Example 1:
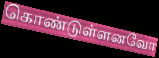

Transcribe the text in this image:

கொண்டுள்ளனவோ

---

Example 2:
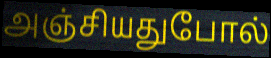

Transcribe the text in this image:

அஞ்சியதுபோல்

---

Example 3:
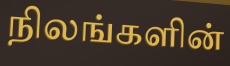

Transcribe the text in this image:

நிலங்களின்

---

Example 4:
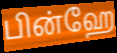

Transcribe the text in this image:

பின்ஹே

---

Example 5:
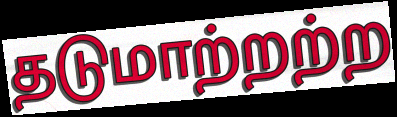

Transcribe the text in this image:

தடுமாற்றற்ற